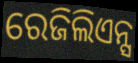
ରେଜିଲିଏନ୍ସ